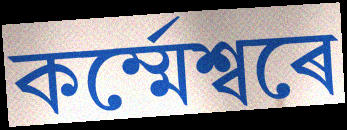
কৰ্ম্মেশ্বৰে